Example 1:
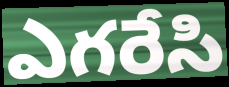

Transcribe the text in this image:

ఎగరేసి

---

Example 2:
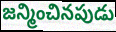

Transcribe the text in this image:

జన్మించినపుడు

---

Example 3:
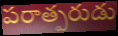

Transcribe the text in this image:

పరాత్పరుడు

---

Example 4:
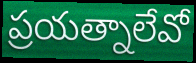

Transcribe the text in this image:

ప్రయత్నాలేవో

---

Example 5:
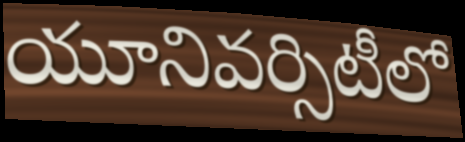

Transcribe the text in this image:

యూనివర్సిటీలో